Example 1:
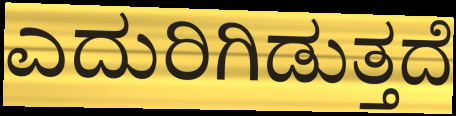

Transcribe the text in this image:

ಎದುರಿಗಿಡುತ್ತದೆ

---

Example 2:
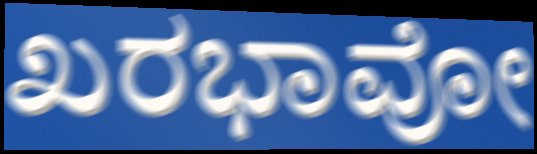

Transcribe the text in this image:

ಖರಭಾವೋ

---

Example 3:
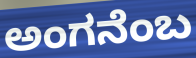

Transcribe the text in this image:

ಅಂಗನೆಂಬ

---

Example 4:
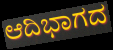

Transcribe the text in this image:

ಆದಿಭಾಗದ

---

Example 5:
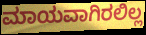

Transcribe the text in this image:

ಮಾಯವಾಗಿರಲಿಲ್ಲ